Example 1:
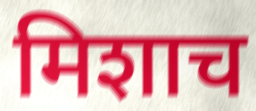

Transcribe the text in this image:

मिशाच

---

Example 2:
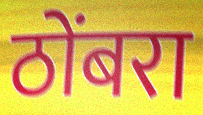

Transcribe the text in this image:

ठोंबरा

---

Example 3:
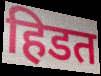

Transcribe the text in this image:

हिडत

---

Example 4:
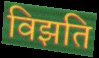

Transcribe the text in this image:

विझति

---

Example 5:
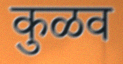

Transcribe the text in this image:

कुळव